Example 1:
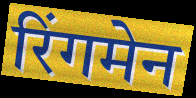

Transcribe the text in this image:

रिंगमेन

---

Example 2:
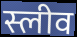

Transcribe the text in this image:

स्लीव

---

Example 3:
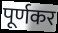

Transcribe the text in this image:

पूर्णकर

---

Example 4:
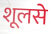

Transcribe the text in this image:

शूलसे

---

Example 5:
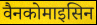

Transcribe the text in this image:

वैनकोमाइसिन